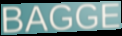
BAGGE